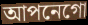
আপনেগো